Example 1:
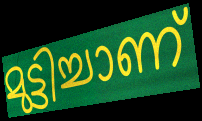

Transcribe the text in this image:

മുട്ടിച്ചാണ്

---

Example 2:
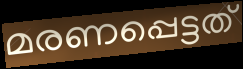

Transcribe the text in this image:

മരണപ്പെട്ടത്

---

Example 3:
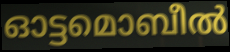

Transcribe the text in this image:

ഓട്ടമൊബീൽ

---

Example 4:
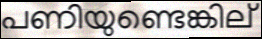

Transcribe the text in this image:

പണിയുണ്ടെങ്കില്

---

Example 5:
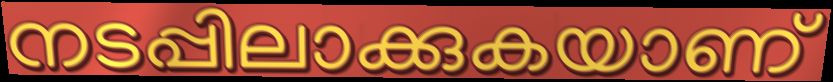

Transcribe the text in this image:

നടപ്പിലാക്കുകയാണ്